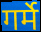
गर्मे